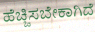
ಹೆಚ್ಚಿಸಬೇಕಾಗಿದೆ